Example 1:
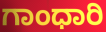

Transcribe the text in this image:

ಗಾಂಧಾರಿ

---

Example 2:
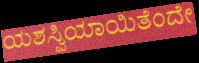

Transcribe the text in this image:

ಯಶಸ್ವಿಯಾಯಿತೆಂದೇ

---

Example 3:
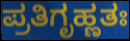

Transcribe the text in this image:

ಪ್ರತಿಗೃಹ್ಣತಃ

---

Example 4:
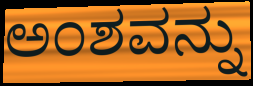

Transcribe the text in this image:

ಅಂಶವನ್ನು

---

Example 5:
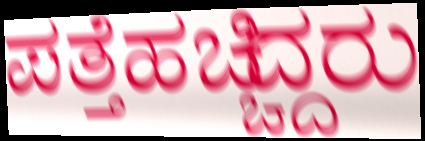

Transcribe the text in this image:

ಪತ್ತೆಹಚ್ಚಿದ್ದರು